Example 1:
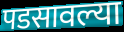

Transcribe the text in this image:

पडसावल्या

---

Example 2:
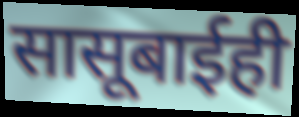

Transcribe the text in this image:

सासूबाईही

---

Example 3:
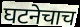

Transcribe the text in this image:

घटनेचाच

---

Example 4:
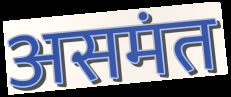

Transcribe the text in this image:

असमंत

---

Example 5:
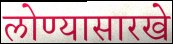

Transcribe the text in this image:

लोण्यासारखे